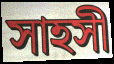
সাহসী